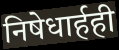
निषेधार्हही